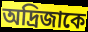
অদ্রিজাকে